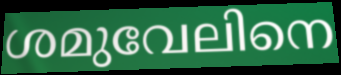
ശമുവേലിനെ